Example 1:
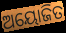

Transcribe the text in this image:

ଅୟୋଜିତ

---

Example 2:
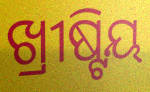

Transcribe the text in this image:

ଖ୍ରୀଷ୍ଟିୟ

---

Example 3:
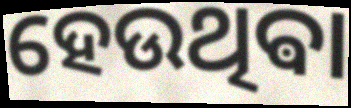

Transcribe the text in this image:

ହେଉଥିଵା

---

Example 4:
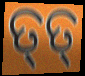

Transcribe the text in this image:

ତ୍‌ତ୍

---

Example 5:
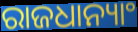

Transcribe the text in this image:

ରାଜଧାନ୍ୟାଂ